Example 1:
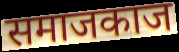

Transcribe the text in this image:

समाजकाज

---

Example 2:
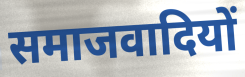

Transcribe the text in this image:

समाजवादियों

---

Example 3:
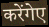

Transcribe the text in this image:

करेंगेए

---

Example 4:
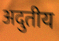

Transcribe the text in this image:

अदुतीय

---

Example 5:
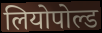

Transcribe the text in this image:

लियोपोल्ड